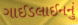
ગાઈડલાઈનનું